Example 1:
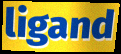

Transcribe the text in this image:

ligand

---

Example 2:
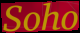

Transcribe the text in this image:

Soho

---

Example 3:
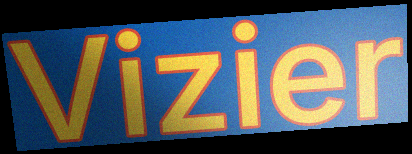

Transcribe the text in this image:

Vizier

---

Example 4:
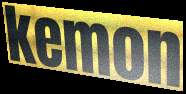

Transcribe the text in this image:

kemon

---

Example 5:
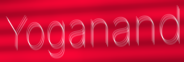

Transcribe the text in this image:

Yoganand